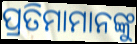
ପ୍ରତିମାମାନଙ୍କୁ